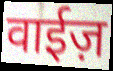
वाईज़